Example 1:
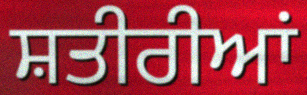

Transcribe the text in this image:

ਸ਼ਤੀਰੀਆਂ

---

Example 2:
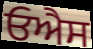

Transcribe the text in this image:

ਓਐਸ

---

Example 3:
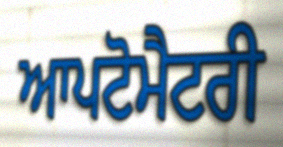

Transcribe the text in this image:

ਆਪਟੋਮੈਟਰੀ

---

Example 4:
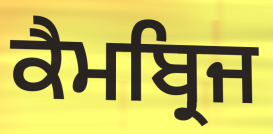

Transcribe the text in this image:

ਕੈਮਬ੍ਰਿਜ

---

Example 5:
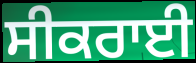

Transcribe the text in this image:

ਸੀਕਰਾਈ